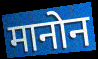
मानोन